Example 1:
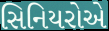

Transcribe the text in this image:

સિનિયરોએ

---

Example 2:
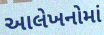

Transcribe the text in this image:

આલેખનોમાં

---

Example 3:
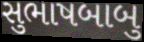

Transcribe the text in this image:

સુભાષબાબુ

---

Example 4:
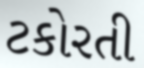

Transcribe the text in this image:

ટકોરતી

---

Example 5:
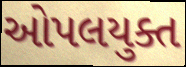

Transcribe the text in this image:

ઓપલયુક્ત